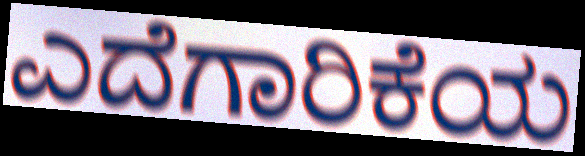
ಎದೆಗಾರಿಕೆಯ